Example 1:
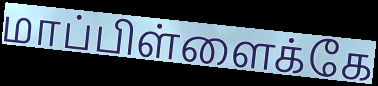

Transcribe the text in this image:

மாப்பிள்ளைக்கே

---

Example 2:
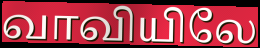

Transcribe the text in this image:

வாவியிலே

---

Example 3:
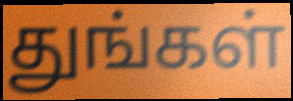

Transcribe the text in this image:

துங்கள்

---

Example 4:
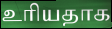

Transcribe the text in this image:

உரியதாக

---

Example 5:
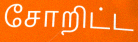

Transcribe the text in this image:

சோறிட்ட